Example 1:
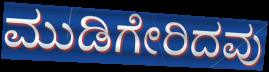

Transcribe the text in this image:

ಮುಡಿಗೇರಿದವು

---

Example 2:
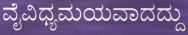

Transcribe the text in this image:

ವೈವಿಧ್ಯಮಯವಾದದ್ದು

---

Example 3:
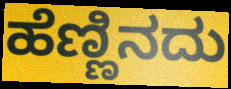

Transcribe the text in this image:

ಹೆಣ್ಣಿನದು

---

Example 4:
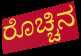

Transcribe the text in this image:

ರೊಚ್ಚಿನ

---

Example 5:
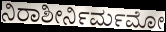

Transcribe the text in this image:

ನಿರಾಶೀರ್ನಿರ್ಮಮೋ